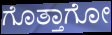
ಗೊತ್ತಾಗೋ